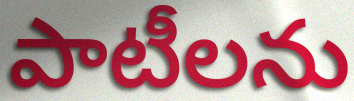
పాటీలను